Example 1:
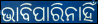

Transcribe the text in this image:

ଭାବିପାରିନାହିଁ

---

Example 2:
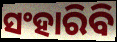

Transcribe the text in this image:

ସଂହାରିବି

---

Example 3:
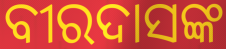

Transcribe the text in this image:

ବୀରଦାସଙ୍କ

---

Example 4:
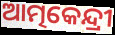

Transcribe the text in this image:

ଆତ୍ମକେନ୍ଦ୍ରୀ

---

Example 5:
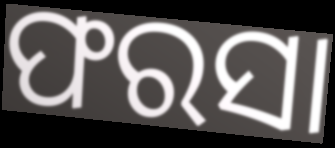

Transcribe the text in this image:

ଫରସା